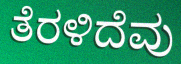
ತೆರಳಿದೆವು